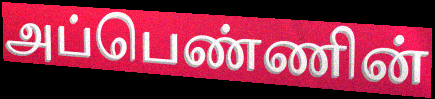
அப்பெண்ணின்